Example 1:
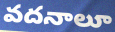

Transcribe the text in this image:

వదనాలూ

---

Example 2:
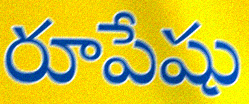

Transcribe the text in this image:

రూపేషు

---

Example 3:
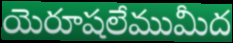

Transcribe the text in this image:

యెరూషలేముమీద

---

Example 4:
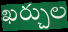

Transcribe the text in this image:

ఖర్చుల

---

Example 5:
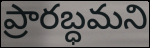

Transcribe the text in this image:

ప్రారబ్ధమని